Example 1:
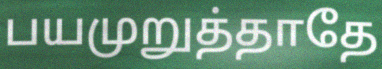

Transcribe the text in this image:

பயமுறுத்தாதே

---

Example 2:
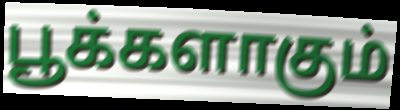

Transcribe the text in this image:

பூக்களாகும்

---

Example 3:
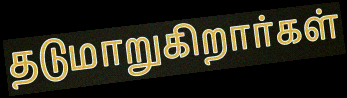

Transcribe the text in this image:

தடுமாறுகிறார்கள்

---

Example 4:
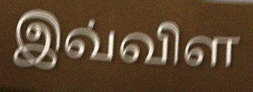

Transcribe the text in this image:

இவ்விள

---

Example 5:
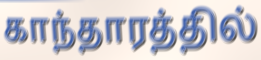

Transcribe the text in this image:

காந்தாரத்தில்